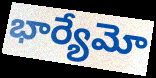
భార్యేమో